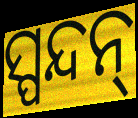
ସ୍ପନ୍ଦନ୍